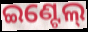
ଇଣ୍ଟେଲ୍